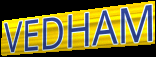
VEDHAM